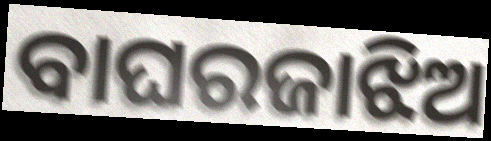
ବାଘରଜାଝିଅ